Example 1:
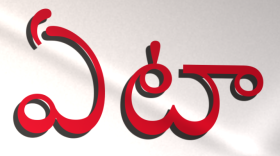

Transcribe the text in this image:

ఏటా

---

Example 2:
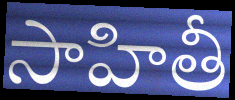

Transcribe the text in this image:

సాహితీ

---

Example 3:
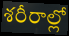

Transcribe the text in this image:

శరీరాల్లో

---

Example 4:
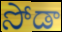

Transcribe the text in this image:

సోడా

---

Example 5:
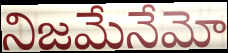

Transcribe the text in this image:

నిజమేనేమో